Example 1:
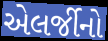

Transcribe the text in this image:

એલર્જીનો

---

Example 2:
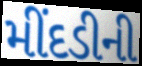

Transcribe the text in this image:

મીંદડીની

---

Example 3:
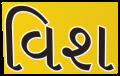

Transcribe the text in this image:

વિશ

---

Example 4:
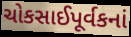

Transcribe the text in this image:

ચોકસાઈપૂર્વકનાં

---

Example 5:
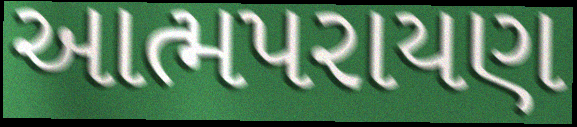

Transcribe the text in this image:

આત્મપરાયણ